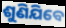
ଶୁଣିଯିବେ